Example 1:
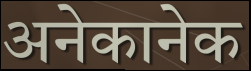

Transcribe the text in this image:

अनेकानेक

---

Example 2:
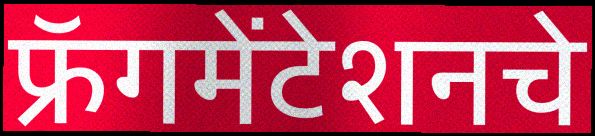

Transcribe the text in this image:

फ्रॅगमेंटेशनचे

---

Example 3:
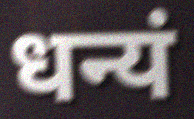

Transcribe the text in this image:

धन्यं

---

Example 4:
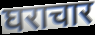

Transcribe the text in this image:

घराचार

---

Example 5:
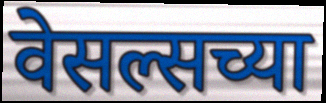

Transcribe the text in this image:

वेसल्सच्या